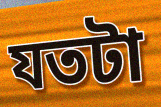
যতটা